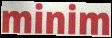
minim